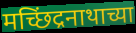
मच्छिंद्रनाथाच्या